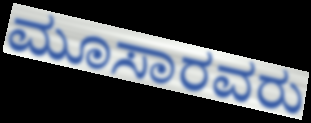
ಮೂಸಾರವರು